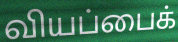
வியப்பைக்